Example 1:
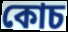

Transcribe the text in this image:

কোচ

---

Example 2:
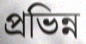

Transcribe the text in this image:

প্রভিন্ন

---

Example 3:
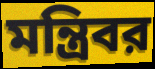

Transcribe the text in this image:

মন্ত্রিবর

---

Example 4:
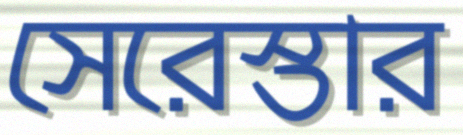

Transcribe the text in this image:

সেরেস্তার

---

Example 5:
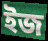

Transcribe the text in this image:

ইজ